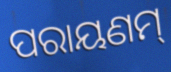
ପରାୟଣମ୍